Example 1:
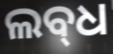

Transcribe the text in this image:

ଲବ୍‍ଧ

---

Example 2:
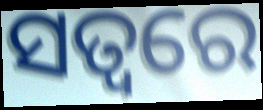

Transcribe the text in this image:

ସତ୍ଵରେ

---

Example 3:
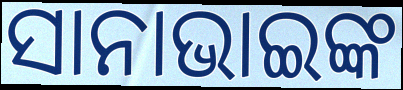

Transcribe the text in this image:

ସାନାଭାଇଙ୍କ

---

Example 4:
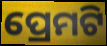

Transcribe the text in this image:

ପ୍ରେମଟି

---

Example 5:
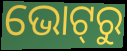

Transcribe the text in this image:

ଭୋଟ୍‌ରୁ